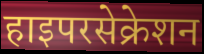
हाइपरसेक्रेशन